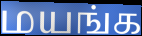
மயங்க